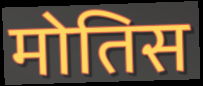
मोतिस